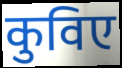
कुविए